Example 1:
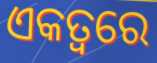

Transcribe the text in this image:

ଏକତ୍ୱରେ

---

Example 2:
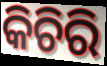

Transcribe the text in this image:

କିଚିରି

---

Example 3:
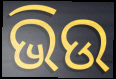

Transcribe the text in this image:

ଭିଉ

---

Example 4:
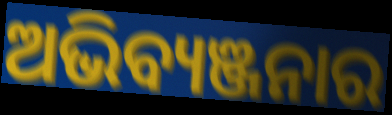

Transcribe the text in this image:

ଅଭିବ୍ୟଞ୍ଜନାର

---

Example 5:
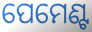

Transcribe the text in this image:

ପେମେଣ୍ଟ